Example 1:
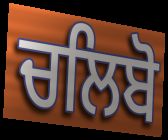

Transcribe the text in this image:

ਚਲਿਬੋ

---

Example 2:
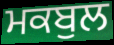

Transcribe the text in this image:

ਮਕਬੁਲ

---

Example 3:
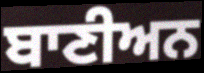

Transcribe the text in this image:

ਬਾਣੀਅਨ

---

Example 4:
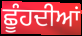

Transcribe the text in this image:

ਛੂੰਹਦੀਆਂ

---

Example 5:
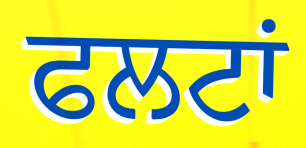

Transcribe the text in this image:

ਫਲਟਾਂ